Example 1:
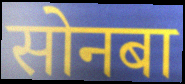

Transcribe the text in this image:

सोनबा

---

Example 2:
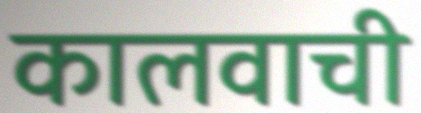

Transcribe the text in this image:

कालवाची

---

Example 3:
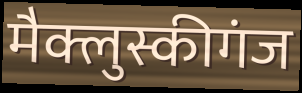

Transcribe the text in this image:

मैक्लुस्कीगंज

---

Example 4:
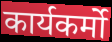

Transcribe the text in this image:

कार्यकर्मो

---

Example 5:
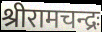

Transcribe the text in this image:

श्रीरामचन्द्रः